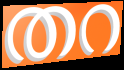
തറ